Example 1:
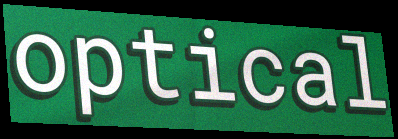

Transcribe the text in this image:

optical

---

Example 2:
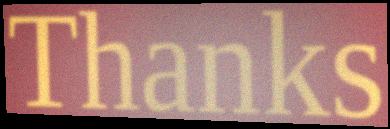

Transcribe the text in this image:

Thanks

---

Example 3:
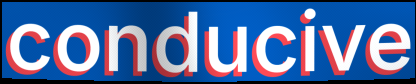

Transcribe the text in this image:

conducive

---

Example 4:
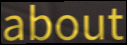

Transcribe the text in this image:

about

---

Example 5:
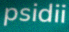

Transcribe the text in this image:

psidii